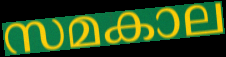
സമകാല